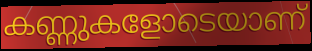
കണ്ണുകളോടെയാണ്